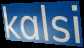
kalsi